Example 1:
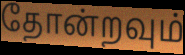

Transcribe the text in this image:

தோன்றவும்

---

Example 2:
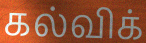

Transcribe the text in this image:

கல்விக்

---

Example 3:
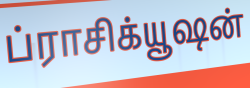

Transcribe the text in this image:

ப்ராசிக்யூஷன்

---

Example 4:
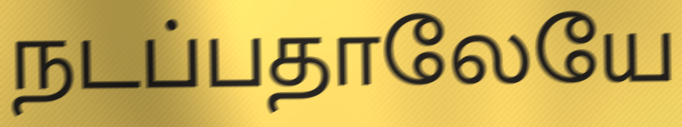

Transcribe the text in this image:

நடப்பதாலேயே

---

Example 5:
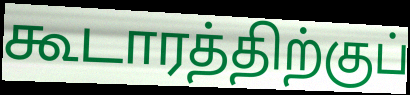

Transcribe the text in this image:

கூடாரத்திற்குப்